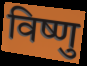
विष्णु